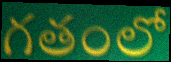
గతంలో